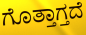
ಗೊತ್ತಾಗ್ತದೆ